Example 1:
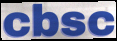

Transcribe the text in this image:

cbsc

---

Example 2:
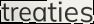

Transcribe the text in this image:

treaties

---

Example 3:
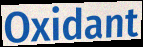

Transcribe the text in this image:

Oxidant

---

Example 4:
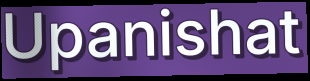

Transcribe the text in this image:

Upanishat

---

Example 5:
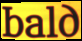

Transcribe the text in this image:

bald